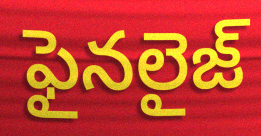
ఫైనలైజ్